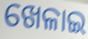
ଖେଳାଇ